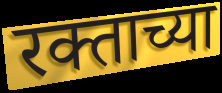
रक्ताच्या